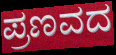
ಪ್ರಣವದ